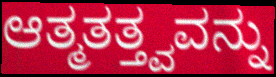
ಆತ್ಮತತ್ತ್ವವನ್ನು